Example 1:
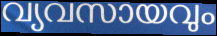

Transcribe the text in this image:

വ്യവസായവും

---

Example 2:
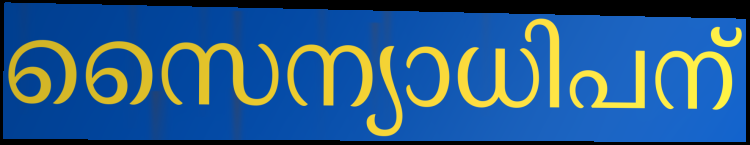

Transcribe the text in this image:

സൈന്യാധിപന്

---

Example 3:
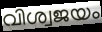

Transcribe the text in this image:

വിശ്വജയം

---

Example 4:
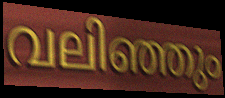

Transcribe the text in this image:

വലിഞ്ഞും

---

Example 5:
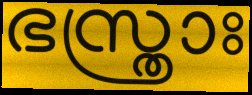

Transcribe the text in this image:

ഭസ്ത്രാഃ